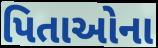
પિતાઓના